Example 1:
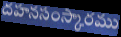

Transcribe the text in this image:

దహనసంస్కారము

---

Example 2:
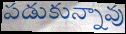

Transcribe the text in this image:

పడుకున్నావు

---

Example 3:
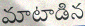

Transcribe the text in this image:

మాటాడిన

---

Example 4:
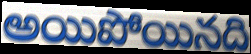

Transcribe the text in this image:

అయిపోయినది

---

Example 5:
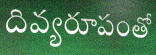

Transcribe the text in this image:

దివ్యరూపంతో